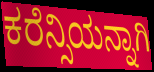
ಕರೆನ್ಸಿಯನ್ನಾಗಿ